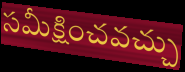
సమీక్షించవచ్చు